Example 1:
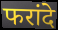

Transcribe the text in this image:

फरांदे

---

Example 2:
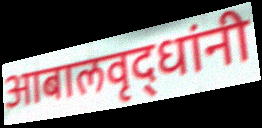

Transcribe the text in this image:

आबालवृद्धांनी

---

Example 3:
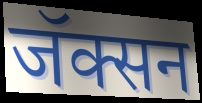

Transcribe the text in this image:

जॅक्सन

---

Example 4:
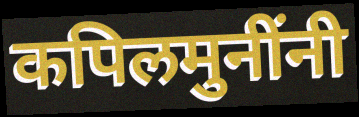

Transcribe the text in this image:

कपिलमुनींनी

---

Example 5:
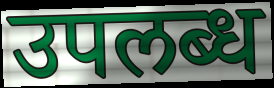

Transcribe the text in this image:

उपलब्ध